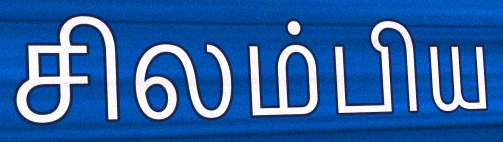
சிலம்பிய